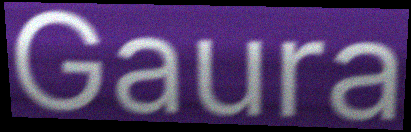
Gaura